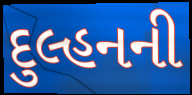
દુલ્હનની